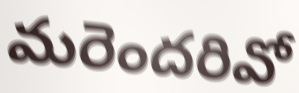
మరెందరివో